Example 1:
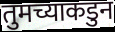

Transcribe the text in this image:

तुमच्याकडुन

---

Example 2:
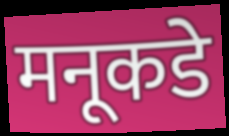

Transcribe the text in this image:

मनूकडे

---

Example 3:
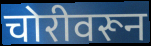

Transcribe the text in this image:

चोरीवरून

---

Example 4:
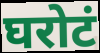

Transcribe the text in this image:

घरोटं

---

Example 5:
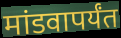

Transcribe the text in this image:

मांडवापर्यंत